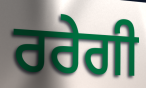
ਰਰੇਗੀ